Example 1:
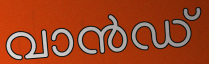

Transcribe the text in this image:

വാൻഡ്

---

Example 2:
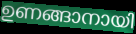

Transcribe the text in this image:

ഉണങ്ങാനായി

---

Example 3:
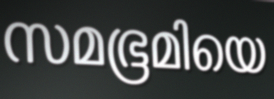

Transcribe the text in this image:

സമഭൂമിയെ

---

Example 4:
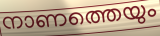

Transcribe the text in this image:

നാണത്തെയും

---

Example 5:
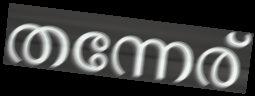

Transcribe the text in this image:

തന്നേര്